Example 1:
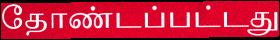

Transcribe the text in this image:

தோண்டப்பட்டது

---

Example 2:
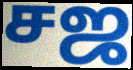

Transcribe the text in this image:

சஜ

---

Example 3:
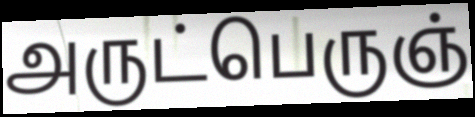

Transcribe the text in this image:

அருட்பெருஞ்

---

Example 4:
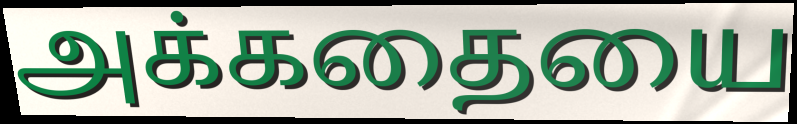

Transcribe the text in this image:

அக்கதையை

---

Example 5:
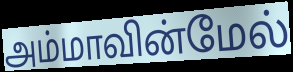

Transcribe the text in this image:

அம்மாவின்மேல்